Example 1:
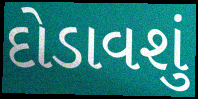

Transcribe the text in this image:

દોડાવશું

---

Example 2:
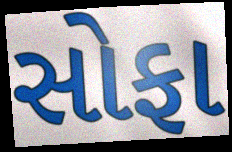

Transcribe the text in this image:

સોફા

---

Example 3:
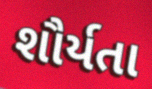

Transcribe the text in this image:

શૌર્યતા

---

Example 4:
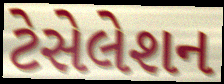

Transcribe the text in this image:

ટેસેલેશન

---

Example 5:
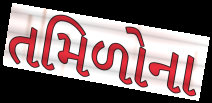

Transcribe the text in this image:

તમિળોના